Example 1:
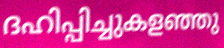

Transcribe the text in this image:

ദഹിപ്പിച്ചുകളഞ്ഞു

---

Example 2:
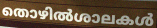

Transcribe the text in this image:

തൊഴിൽശാലകൾ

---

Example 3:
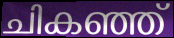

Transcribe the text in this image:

ചികഞ്ഞ്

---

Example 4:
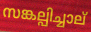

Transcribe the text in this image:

സങ്കല്പിച്ചാല്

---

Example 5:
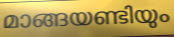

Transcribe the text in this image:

മാങ്ങയണ്ടിയും